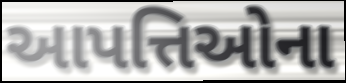
આપત્તિઓના